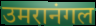
उमरानंगल